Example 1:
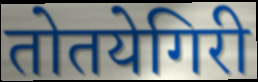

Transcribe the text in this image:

तोतयेगिरी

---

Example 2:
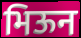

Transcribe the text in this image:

भिऊन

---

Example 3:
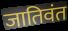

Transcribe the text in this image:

जातिवंत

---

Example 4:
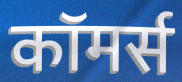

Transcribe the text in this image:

कॉमर्स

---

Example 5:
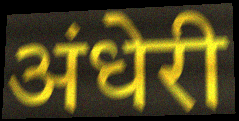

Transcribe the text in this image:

अंधेरी